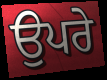
ਉਪਰੇ